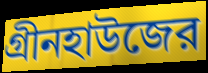
গ্রীনহাউজের